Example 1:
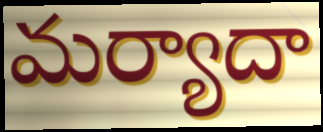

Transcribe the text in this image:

మర్యాదా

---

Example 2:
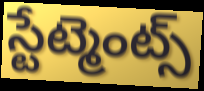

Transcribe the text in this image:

స్టేట్మెంట్స్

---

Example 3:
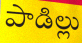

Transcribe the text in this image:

పాడిల్లు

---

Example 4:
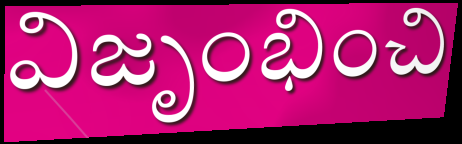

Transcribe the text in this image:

విజృంభించి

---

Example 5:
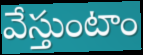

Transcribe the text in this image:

వేస్తుంటాం